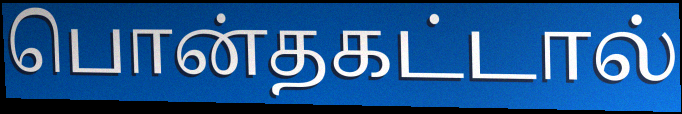
பொன்தகட்டால்